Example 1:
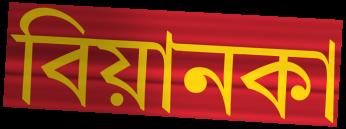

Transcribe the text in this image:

বিয়ানকা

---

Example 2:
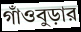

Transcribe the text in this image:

গাঁওবুড়ার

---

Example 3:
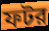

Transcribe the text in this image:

ফটর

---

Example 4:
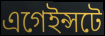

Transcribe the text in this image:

এগেইন্সটে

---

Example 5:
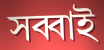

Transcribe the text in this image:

সব্বাই